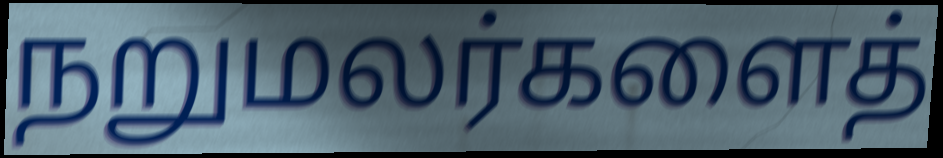
நறுமலர்களைத்